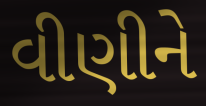
વીણીને